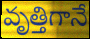
వృత్తిగానే